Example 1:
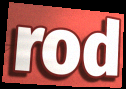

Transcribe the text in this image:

rod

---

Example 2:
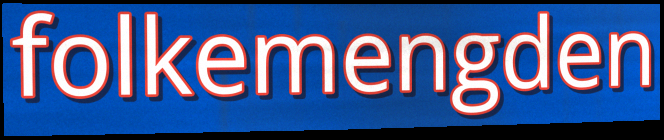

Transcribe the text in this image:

folkemengden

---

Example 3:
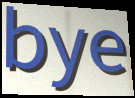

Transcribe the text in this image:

bye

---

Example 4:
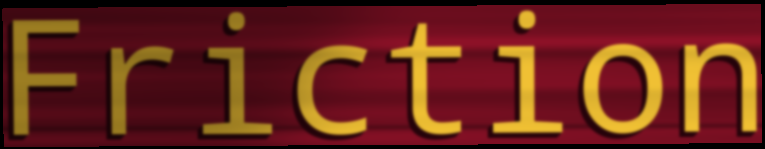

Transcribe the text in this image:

Friction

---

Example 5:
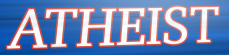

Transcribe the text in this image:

ATHEIST